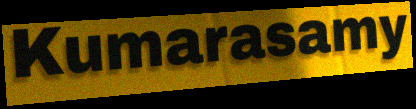
Kumarasamy